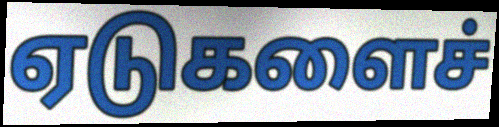
ஏடுகளைச்